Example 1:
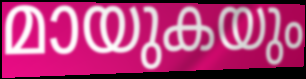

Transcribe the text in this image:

മായുകയും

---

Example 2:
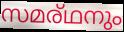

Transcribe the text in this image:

സമര്ഥനും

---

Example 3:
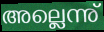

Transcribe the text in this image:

അല്ലെന്നു്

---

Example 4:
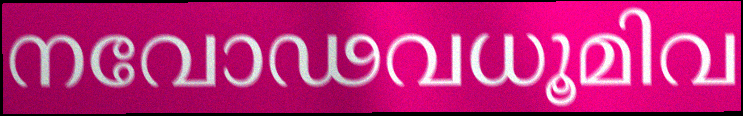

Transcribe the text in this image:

നവോഢവധൂമിവ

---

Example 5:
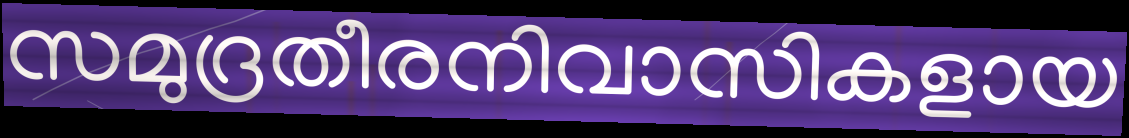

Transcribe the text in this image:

സമുദ്രതീരനിവാസികളായ